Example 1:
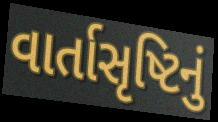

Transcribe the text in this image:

વાર્તાસૃષ્ટિનું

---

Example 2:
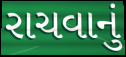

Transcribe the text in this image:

રાચવાનું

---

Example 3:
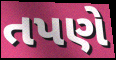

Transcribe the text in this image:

તપણે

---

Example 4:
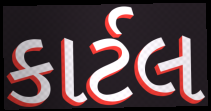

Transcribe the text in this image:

કાર્ટલ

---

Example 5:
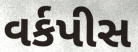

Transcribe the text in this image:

વર્કપીસ